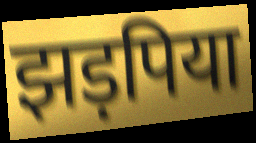
झड़पिया